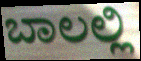
ಬಾಲಲ್ಲಿ